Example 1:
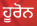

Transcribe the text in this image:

ਹੂਰੋਨ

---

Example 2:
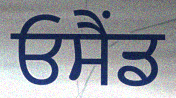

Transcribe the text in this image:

ਓਸੈਂਡ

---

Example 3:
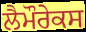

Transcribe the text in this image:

ਲੈਮੌਰੇਕਸ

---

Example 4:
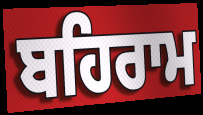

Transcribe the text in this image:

ਬਹਿਰਾਮ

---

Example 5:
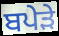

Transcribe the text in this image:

ਬਪੇੜੇ